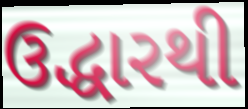
ઉદ્ધારથી